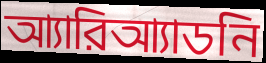
আ্যারিআ্যাডনি